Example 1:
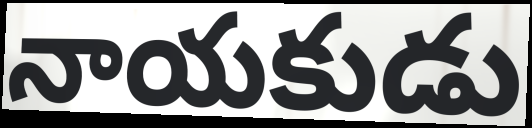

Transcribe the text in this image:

నాయకుడు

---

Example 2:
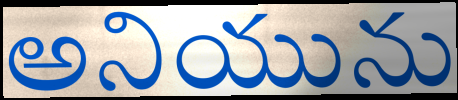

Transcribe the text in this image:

అనియును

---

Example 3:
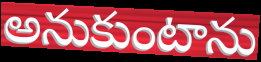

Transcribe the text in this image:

అనుకుంటాను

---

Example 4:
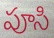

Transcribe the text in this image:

పూసి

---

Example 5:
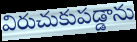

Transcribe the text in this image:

విరుచుకుపడ్డాను